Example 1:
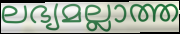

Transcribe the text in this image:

ലഭ്യമല്ലാത്ത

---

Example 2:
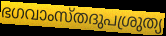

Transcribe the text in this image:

ഭഗവാംസ്തദുപശ്രുത്യ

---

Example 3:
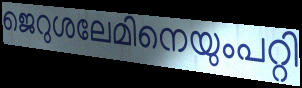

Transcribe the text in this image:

ജെറുശലേമിനെയുംപറ്റി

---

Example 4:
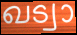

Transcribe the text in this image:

ഖട്വാ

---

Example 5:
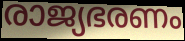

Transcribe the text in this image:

രാജ്യഭരണം